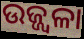
ଉଜ୍ଜ୍ୱଳା